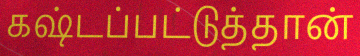
கஷ்டப்பட்டுத்தான்